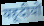
यहूदीयों